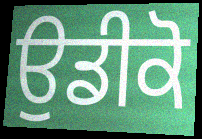
ਉਡੀਕੋ